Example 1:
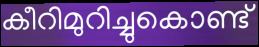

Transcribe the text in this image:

കീറിമുറിച്ചുകൊണ്ട്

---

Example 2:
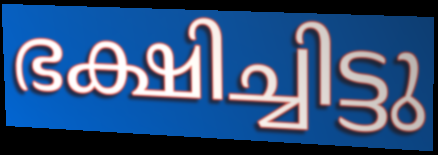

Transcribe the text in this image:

ഭക്ഷിച്ചിട്ടു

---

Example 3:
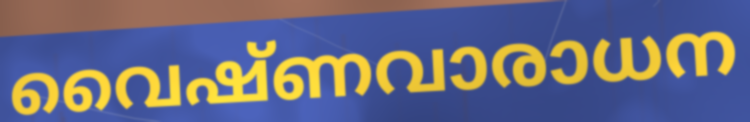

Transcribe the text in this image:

വൈഷ്ണവാരാധന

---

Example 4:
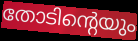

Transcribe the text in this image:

തോടിന്റെയും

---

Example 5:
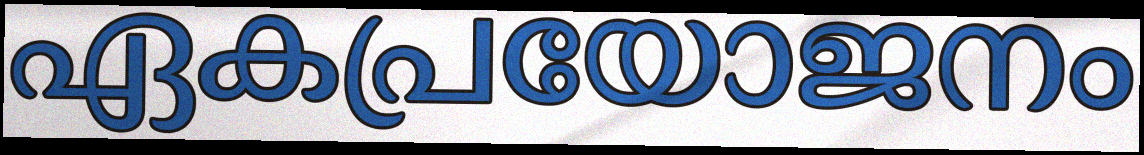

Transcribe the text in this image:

ഏകപ്രയോജനം